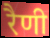
रैणी